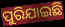
ପୁରିଯାଇଛି